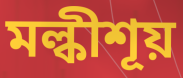
মল্কীশূয়